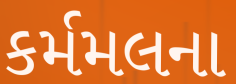
કર્મમલના